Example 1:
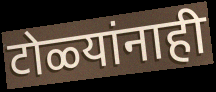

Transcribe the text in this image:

टोळ्यांनाही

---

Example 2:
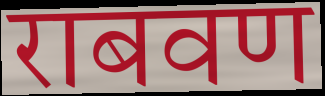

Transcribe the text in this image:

राबवण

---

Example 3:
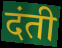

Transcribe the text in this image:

दंती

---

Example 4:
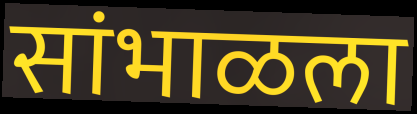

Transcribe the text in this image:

सांभाळला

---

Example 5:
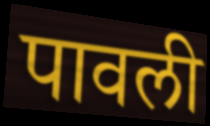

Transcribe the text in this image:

पावली